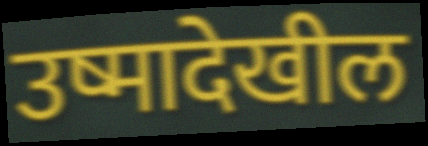
उष्मादेखील